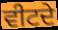
ਵੀਟਦੇ